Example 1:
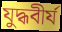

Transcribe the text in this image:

যুদ্ধবীর্য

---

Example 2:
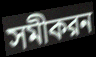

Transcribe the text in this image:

সমীকরন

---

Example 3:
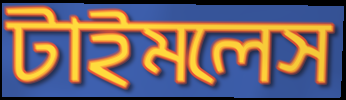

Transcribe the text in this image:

টাইমলেস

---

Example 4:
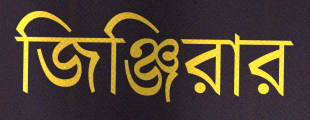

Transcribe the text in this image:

জিঞ্জিরার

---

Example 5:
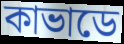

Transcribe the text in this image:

কাভাডে